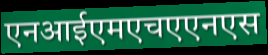
एनआईएमएचएएनएस